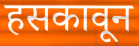
हसकावून